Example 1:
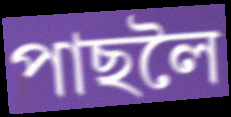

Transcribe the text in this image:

পাছলৈ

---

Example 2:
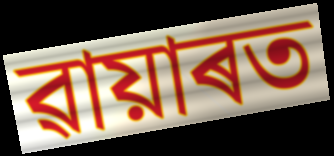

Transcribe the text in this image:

ৱায়াৰত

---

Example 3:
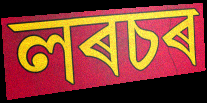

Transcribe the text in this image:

লৰচৰ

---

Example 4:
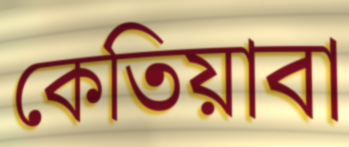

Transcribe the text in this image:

কেতিয়াবা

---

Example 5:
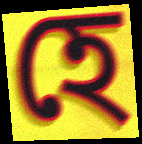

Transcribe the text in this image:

হে